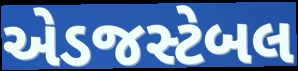
એડજસ્ટેબલ